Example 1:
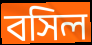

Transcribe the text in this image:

বসিল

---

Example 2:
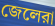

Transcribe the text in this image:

জেলেরা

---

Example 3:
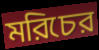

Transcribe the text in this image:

মরিচের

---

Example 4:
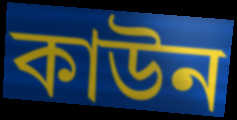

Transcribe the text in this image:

কাউন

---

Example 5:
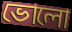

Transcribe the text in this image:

ভোলো